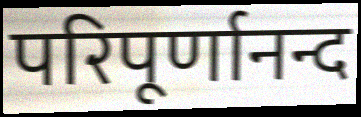
परिपूर्णानन्द